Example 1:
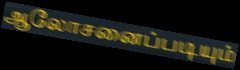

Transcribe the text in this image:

ஆலோசனைப்படியும்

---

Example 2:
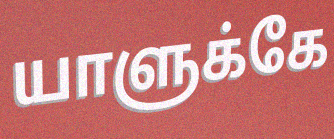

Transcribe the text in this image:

யாளுக்கே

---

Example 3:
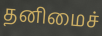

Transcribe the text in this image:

தனிமைச்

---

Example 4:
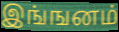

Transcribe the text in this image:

இங்ஙனம்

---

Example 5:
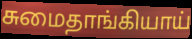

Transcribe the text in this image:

சுமைதாங்கியாய்